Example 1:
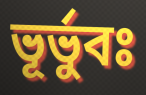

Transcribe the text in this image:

ভূর্ভুবঃ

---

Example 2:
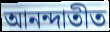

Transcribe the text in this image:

আনন্দাতীত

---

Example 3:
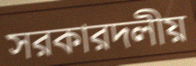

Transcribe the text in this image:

সরকারদলীয়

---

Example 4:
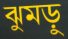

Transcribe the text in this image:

ঝুমড়ু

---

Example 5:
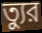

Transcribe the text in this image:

ত্যুর